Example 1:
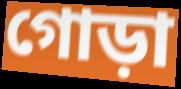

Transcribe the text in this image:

গোড়া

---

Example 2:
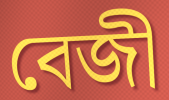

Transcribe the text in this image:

বেজী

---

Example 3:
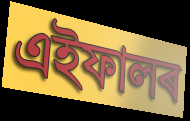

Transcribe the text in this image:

এইফালৰ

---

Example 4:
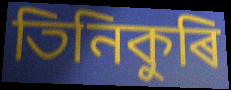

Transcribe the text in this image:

তিনিকুৰি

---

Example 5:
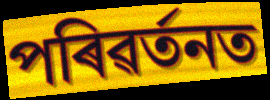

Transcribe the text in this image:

পৰিৱৰ্তনত